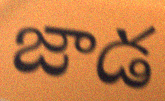
జాడ